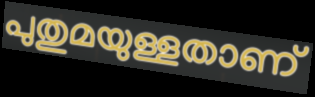
പുതുമയുള്ളതാണ്